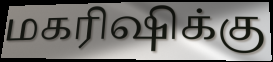
மகரிஷிக்கு